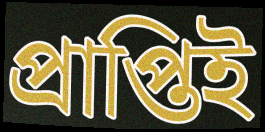
প্রাপ্তিই